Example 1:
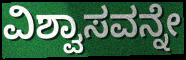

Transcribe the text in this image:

ವಿಶ್ವಾಸವನ್ನೇ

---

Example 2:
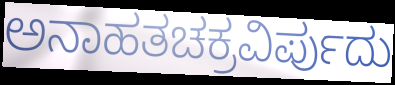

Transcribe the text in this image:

ಅನಾಹತಚಕ್ರವಿರ್ಪುದು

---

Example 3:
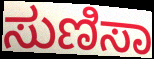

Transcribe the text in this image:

ಸುಣಿಸಾ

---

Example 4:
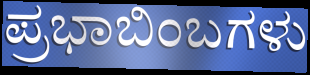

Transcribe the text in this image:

ಪ್ರಭಾಬಿಂಬಗಳು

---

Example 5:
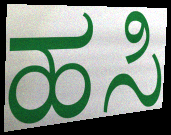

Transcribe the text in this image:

ಹಸಿ